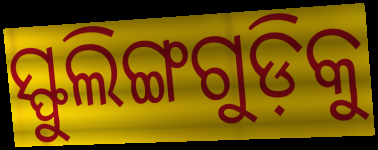
ସ୍ଫୁଲିଙ୍ଗଗୁଡ଼ିକୁ